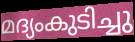
മദ്യംകുടിച്ചു